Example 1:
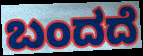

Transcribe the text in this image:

ಬಂದದೆ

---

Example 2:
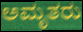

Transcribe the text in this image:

ಅಮೃತರು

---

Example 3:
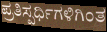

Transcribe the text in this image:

ಪ್ರತಿಸ್ಪರ್ಧಿಗಳಿಗಿಂತ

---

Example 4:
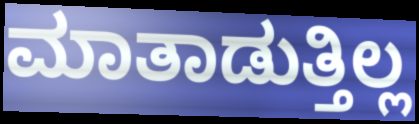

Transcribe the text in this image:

ಮಾತಾಡುತ್ತಿಲ್ಲ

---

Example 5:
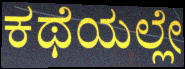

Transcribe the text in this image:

ಕಥೆಯಲ್ಲೇ